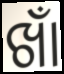
ଖାଁ